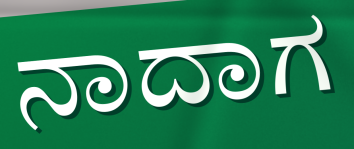
ನಾದಾಗ